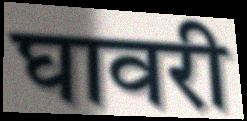
घावरी